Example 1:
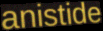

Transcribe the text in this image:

anistide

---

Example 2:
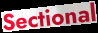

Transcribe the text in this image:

Sectional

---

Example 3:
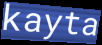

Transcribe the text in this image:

kayta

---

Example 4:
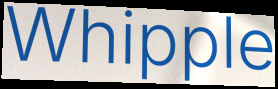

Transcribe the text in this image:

Whipple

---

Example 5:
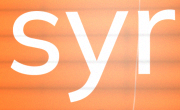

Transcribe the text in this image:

syr